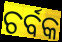
ଚର୍ବକ